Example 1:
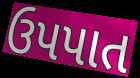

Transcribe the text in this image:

ઉપપાત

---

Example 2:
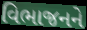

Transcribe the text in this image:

વિભાજનને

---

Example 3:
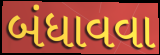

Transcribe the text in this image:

બંધાવવા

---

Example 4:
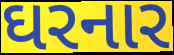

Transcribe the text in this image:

ઘરનાર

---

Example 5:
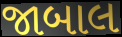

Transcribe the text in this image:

જાબાલ